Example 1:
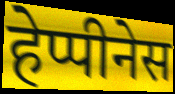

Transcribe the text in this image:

हेप्पीनेस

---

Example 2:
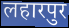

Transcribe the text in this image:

लहारपुर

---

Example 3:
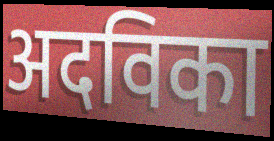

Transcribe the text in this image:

अदविका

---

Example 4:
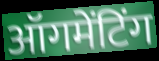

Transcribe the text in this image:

ऑगमेंटिंग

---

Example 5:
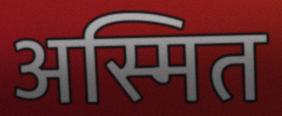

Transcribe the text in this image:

अस्मित